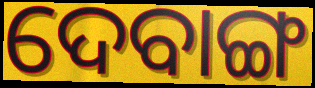
ଦେବାଙ୍ଗ